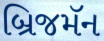
બ્રિજમૅન